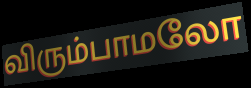
விரும்பாமலோ